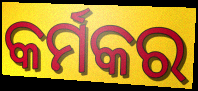
କର୍ମକର